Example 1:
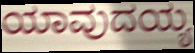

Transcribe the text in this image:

ಯಾವುದಯ್ಯ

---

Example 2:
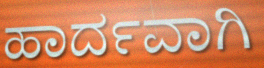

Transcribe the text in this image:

ಹಾರ್ದವಾಗಿ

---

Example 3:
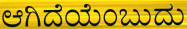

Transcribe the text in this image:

ಆಗಿದೆಯೆಂಬುದು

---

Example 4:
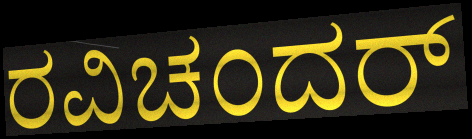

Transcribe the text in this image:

ರವಿಚಂದರ್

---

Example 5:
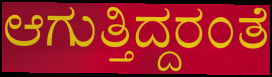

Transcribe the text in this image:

ಆಗುತ್ತಿದ್ದರಂತೆ